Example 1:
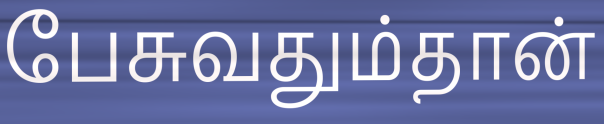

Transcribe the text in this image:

பேசுவதும்தான்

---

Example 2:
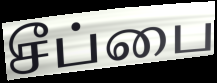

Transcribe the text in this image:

சீப்பை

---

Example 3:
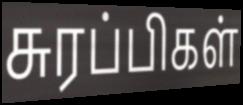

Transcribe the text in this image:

சுரப்பிகள்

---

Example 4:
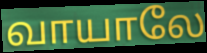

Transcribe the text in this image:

வாயாலே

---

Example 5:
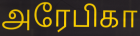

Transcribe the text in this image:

அரேபிகா